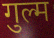
गुल्म